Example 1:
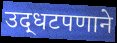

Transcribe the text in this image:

उद्धटपणाने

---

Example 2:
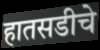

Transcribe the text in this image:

हातसडीचे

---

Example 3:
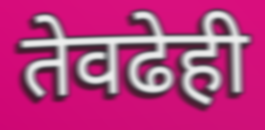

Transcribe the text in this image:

तेवढेही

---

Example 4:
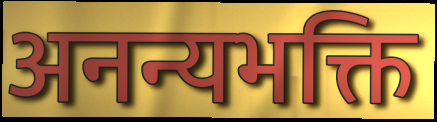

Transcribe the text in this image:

अनन्यभक्ति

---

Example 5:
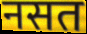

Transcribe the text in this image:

नसत